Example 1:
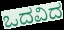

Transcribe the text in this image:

ಒದವಿದ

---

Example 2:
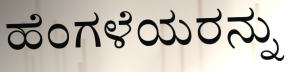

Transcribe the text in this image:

ಹೆಂಗಳೆಯರನ್ನು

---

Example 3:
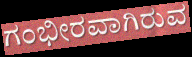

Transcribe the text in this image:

ಗಂಭೀರವಾಗಿರುವ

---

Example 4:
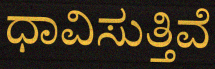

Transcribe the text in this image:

ಧಾವಿಸುತ್ತಿವೆ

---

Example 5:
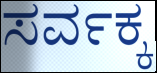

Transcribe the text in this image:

ಸರ್ವಕ್ಕ